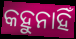
କହୁନାହିଁ